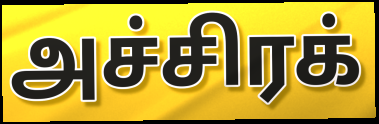
அச்சிரக்